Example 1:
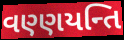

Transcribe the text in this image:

વણ્ણયન્તિ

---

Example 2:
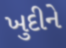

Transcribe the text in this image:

ખુદીને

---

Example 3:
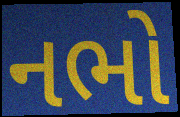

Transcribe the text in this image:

નભો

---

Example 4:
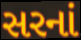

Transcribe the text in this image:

સરનાં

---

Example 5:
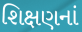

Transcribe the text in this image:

શિક્ષણનાં